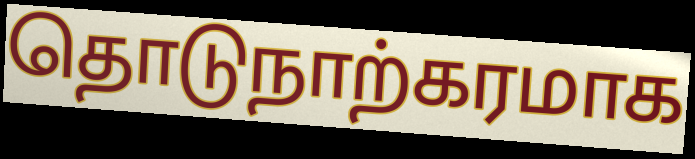
தொடுநாற்கரமாக